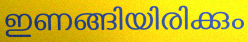
ഇണങ്ങിയിരിക്കും